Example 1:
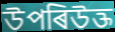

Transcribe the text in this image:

উপৰিউক্ত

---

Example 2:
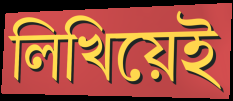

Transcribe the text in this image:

লিখিয়েই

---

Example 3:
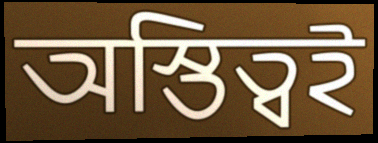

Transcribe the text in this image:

অস্তিত্বই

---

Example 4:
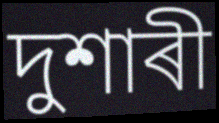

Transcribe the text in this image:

দুশাৰী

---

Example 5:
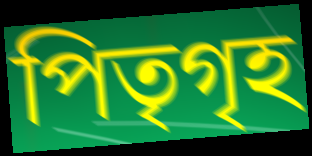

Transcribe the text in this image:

পিতৃগৃহ